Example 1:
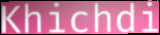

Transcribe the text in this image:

Khichdi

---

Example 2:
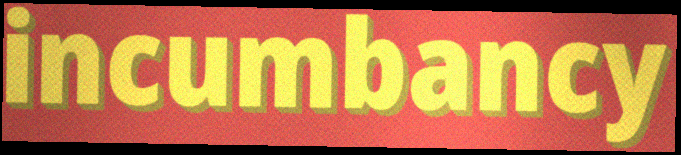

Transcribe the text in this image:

incumbancy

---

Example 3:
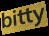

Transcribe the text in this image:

bitty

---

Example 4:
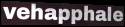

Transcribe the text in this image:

vehapphale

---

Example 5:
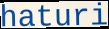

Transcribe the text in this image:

haturi